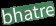
bhatre